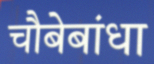
चौबेबांधा